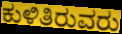
ಕುಳಿತಿರುವರು